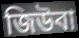
জিউবা